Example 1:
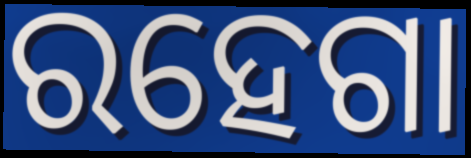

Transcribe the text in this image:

ରହେଗା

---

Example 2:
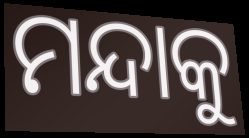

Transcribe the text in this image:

ମନ୍ଦାକୁ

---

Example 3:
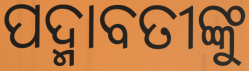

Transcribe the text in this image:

ପଦ୍ମାବତୀଙ୍କୁ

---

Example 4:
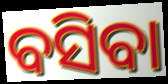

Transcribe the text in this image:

ବସିବା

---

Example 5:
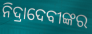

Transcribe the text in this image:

ନିଦ୍ରାଦେବୀଙ୍କର